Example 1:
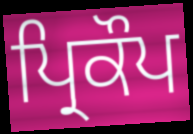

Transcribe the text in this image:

ਪ੍ਰਿਕੌਪ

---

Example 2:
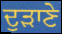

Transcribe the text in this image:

ਦੁੜਾਣੇ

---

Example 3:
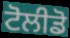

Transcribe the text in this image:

ਟੋਲੀਡੋ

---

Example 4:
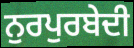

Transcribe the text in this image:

ਨੁਰਪੁਰਬੇਦੀ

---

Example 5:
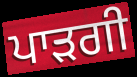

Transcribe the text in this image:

ਪਾੜਗੀ